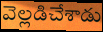
వెల్లడిచేశాడు